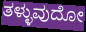
ತಳ್ಳುವುದೋ